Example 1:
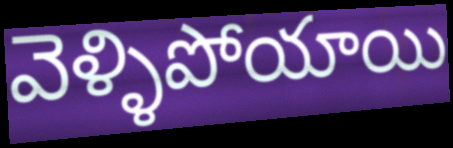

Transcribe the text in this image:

వెళ్ళిపోయాయి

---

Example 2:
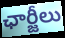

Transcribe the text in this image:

ఛార్జీలు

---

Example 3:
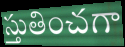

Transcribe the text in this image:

స్తుతించగా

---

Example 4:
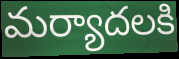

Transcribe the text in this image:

మర్యాదలకి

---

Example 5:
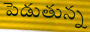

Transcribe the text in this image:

పెడుతున్న